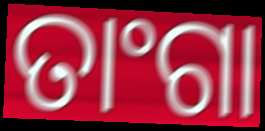
ତାଂଗା